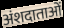
अंशदाताओं